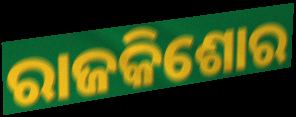
ରାଜକିଶୋର